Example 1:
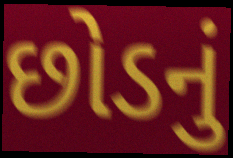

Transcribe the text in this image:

છોડનું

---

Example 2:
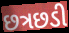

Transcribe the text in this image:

છત્રછડી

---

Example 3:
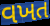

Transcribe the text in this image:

વખત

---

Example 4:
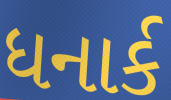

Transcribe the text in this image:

ધનાર્ક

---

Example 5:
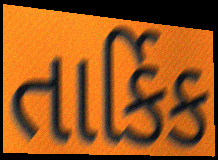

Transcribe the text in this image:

તાર્કિક